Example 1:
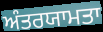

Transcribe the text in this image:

ਅੰਤਰਯਾਮਤਾ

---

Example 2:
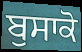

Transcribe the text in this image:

ਬੁਸਾਕੋ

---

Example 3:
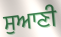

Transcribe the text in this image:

ਸੁਆਣੀ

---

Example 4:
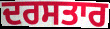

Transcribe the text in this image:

ਦਰਸਤਾਰ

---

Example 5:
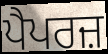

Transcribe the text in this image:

ਪੈਪਰਜ਼